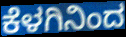
ಕೆಳಗಿನಿಂದ